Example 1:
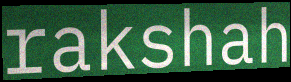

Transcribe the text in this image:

rakshah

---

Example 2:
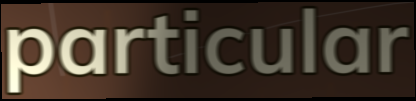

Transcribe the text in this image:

particular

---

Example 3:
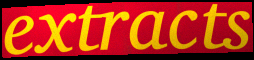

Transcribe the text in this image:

extracts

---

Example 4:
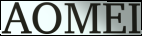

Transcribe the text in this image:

AOMEI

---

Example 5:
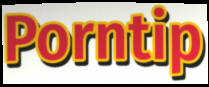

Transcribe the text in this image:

Porntip